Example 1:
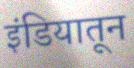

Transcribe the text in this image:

इंडियातून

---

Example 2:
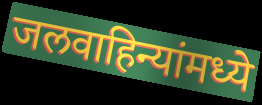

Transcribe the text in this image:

जलवाहिन्यांमध्ये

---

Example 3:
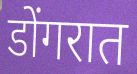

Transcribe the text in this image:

डोंगरात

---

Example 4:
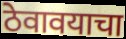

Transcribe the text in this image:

ठेवावयाचा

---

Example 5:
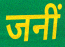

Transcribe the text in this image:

जनीं